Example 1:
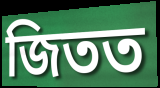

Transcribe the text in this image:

জিতত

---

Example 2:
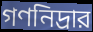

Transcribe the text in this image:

গণনিদ্রার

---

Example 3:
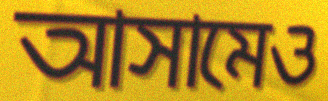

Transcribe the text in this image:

আসামেও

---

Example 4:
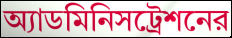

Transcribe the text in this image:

অ্যাডমিনিসট্রেশনের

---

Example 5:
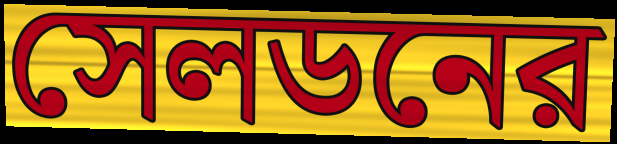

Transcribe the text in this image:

সেলডনের